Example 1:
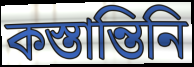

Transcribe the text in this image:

কস্তান্তিনি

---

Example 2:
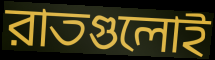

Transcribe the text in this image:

রাতগুলোই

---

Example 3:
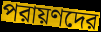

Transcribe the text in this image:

পরায়ণদের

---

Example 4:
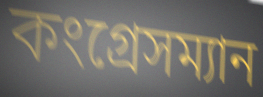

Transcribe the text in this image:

কংগ্রেসম্যান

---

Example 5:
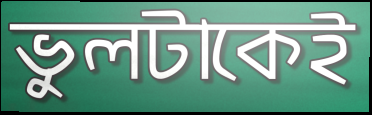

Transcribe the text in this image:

ভুলটাকেই